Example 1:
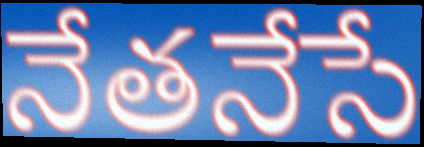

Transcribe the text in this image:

నేతనేసే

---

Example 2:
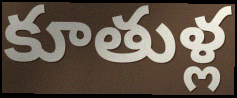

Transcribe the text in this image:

కూతుళ్ల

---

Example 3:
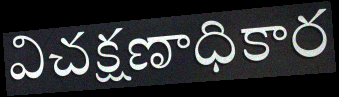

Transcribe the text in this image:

విచక్షణాధికార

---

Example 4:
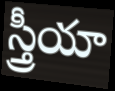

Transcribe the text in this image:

స్త్రీయా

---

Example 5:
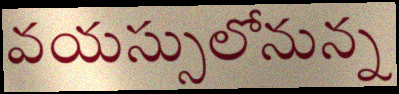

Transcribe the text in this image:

వయస్సులోనున్న